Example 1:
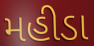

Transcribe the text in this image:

મહીડા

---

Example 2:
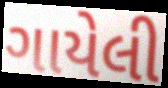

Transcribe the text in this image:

ગાયેલી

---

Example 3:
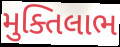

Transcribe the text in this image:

મુક્તિલાભ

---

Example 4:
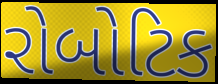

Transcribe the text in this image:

રોબોટિક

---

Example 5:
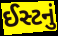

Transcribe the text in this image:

ઈસ્ટનું